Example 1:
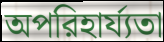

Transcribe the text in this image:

অপরিহার্য্যতা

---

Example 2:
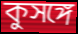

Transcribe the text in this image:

কুসঙ্গে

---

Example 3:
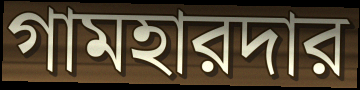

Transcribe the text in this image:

গামহারদার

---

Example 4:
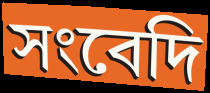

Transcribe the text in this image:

সংবেদি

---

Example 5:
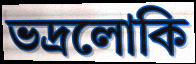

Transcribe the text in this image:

ভদ্রলোকি